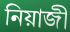
নিয়াজী